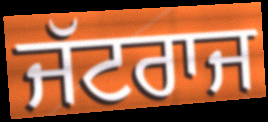
ਜੱਟਰਾਜ